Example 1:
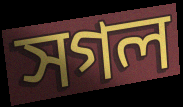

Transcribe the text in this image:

সগল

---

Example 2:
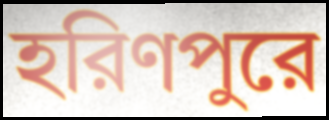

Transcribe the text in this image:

হরিণপুরে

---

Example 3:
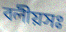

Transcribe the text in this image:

বলীয়সঃ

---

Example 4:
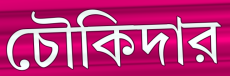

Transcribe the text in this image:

চৌকিদার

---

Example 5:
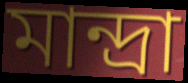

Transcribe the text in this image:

মান্দ্রা